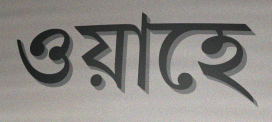
ওয়াহে